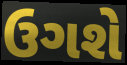
ઉગશે